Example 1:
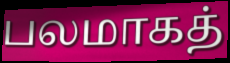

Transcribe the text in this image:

பலமாகத்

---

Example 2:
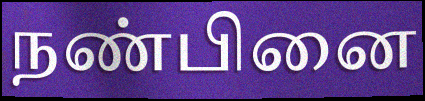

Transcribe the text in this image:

நண்பினை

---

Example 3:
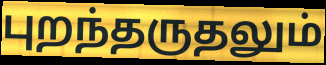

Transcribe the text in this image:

புறந்தருதலும்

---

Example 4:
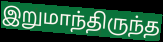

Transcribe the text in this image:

இறுமாந்திருந்த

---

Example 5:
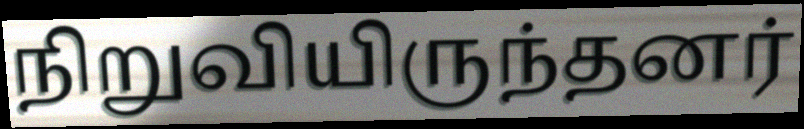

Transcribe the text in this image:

நிறுவியிருந்தனர்